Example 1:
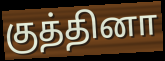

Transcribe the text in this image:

குத்தினா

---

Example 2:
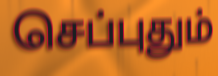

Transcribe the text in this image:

செப்புதும்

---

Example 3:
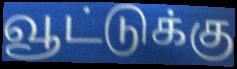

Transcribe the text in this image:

வூட்டுக்கு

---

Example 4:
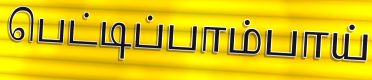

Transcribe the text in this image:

பெட்டிப்பாம்பாய்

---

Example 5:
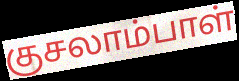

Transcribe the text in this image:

குசலாம்பாள்